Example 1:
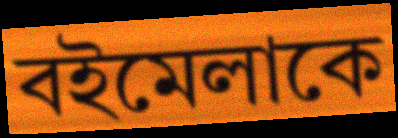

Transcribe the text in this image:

বইমেলাকে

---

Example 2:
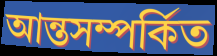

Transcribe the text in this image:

আন্তসম্পর্কিত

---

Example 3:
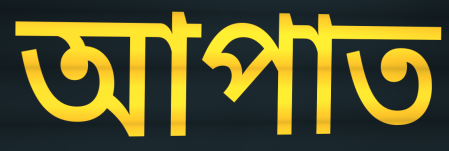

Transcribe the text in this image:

আপাত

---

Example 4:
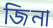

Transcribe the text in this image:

জিনা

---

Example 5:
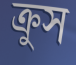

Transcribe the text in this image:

ক্রুস